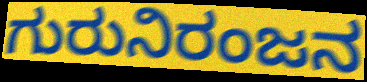
ಗುರುನಿರಂಜನ